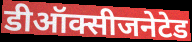
डीऑक्सीजनेटेड